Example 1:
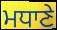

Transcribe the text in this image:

ਮਧਾਣੇ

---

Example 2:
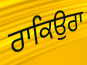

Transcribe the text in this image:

ਰਾਕਿਉਰਾ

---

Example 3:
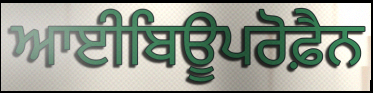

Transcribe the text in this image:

ਆਈਬਿਊਪਰੋਫ਼ੈਨ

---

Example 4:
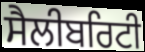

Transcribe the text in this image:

ਸੈਲੀਬਰਿਟੀ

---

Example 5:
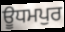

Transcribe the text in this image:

ਊਧਮਪੁਰ